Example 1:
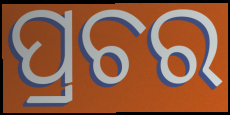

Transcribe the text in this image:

ପ୍ରଚର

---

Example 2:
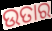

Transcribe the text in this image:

ଉତାର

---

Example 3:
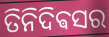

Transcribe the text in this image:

ତିନିଦିଵସର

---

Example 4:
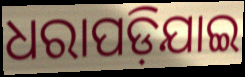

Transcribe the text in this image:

ଧରାପଡ଼ିଯାଇ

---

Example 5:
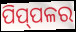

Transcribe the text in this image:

ପିପ୍‌ପଳର